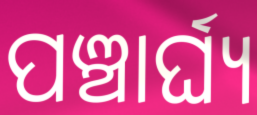
ପଞ୍ଚାର୍ଘ୍ୟ